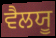
ਵੈਲਯੂ